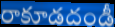
రాకూడదండీ